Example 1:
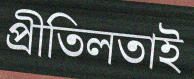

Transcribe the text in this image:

প্ৰীতিলতাই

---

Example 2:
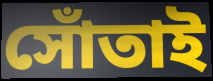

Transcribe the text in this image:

সোঁতাই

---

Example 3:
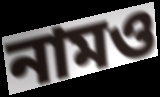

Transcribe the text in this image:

নামও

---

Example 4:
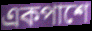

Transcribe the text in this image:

একপাশে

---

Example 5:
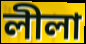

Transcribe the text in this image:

লীলা